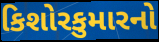
કિશોરકુમારનો